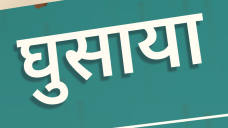
घुसाया